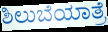
ಶಿಲುಬೆಯಾತ್ರೆ